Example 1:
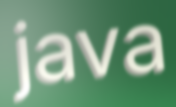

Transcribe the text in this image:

java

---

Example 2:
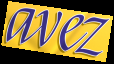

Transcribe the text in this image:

avez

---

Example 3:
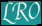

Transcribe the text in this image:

LRO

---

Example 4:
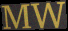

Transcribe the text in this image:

MW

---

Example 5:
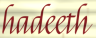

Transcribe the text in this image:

hadeeth